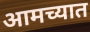
आमच्यात